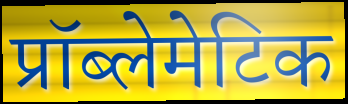
प्रॉब्लेमेटिक